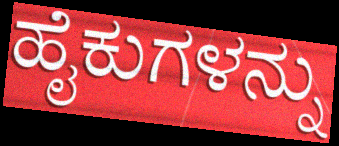
ಹೈಕುಗಳನ್ನು